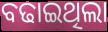
ବଢାଇଥିଲା